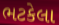
ભટકેલા